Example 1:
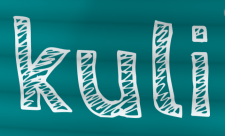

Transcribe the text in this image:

kuli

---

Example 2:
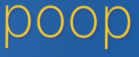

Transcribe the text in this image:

poop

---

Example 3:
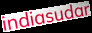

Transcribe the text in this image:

indiasudar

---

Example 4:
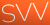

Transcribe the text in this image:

SVV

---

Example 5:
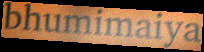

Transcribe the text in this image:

bhumimaiya